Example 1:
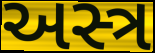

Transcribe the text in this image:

અસ્ત્ર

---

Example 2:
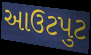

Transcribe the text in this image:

આઉટપુટ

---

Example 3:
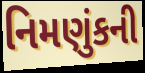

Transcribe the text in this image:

નિમણુંકની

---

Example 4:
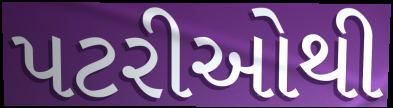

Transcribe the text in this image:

પટરીઓથી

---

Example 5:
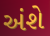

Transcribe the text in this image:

અંશે